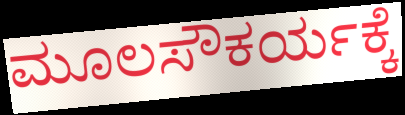
ಮೂಲಸೌಕರ್ಯಕ್ಕೆ